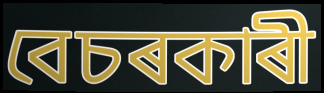
বেচৰকাৰী